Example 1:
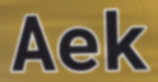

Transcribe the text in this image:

Aek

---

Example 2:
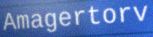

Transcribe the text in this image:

Amagertorv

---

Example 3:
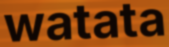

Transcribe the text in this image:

watata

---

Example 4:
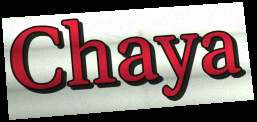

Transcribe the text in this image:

Chaya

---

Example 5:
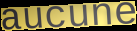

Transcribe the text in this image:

aucune